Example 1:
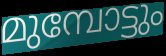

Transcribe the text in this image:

മുമ്പോട്ടും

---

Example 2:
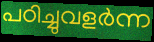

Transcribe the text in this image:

പഠിച്ചുവളർന്ന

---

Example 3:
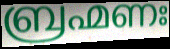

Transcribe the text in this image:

ബ്രഹ്മണഃ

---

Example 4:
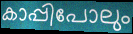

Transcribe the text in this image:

കാപ്പിപോലും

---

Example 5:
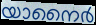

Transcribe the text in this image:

യാനൈർ